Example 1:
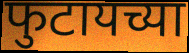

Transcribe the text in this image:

फुटायच्या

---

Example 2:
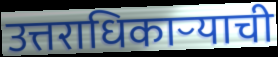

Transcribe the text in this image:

उत्तराधिकाऱ्याची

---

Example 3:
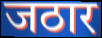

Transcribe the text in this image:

जठार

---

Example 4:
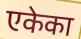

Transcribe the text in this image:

एकेका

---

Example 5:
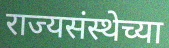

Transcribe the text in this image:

राज्यसंस्थेच्या